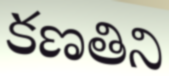
కణతిని